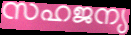
സഹജന്യ